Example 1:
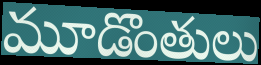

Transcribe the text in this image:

మూడొంతులు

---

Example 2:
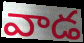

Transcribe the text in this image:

వాడ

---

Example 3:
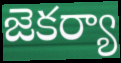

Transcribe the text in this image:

జెకర్యా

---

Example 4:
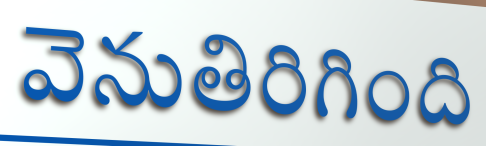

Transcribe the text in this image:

వెనుతిరిగింది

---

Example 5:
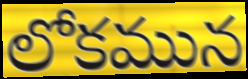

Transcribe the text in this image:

లోకమున